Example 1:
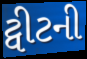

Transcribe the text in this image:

ટ્વીટની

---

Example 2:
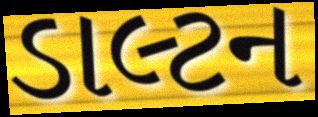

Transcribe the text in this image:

ડાલ્ટન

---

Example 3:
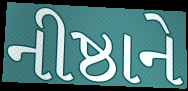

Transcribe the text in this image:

નીષ્ઠાને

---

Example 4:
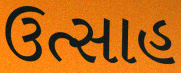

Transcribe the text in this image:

ઉત્સાહ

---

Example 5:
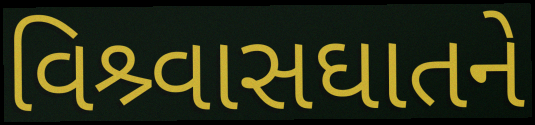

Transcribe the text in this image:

વિશ્ર્વાસઘાતને